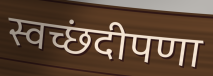
स्वच्छंदीपणा